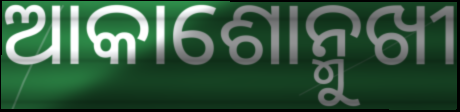
ଆକାଶୋନ୍ମୁଖୀ